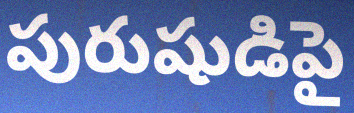
పురుషుడిపై